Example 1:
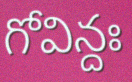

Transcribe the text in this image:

గోవిన్దః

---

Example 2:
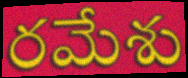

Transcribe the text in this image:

రమేశు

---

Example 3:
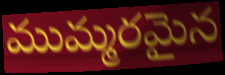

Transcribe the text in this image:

ముమ్మరమైన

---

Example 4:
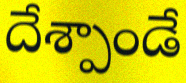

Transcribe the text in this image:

దేశ్పాండే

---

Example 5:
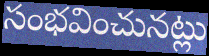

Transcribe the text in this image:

సంభవించునట్లు